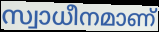
സ്വാധീനമാണ്